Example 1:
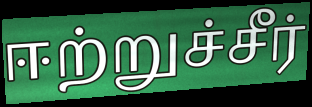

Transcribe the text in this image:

ஈற்றுச்சீர்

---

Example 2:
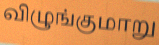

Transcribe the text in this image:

விழுங்குமாறு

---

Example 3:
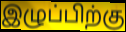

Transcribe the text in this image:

இழுப்பிற்கு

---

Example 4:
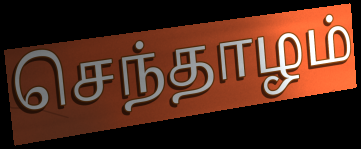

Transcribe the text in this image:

செந்தாழம்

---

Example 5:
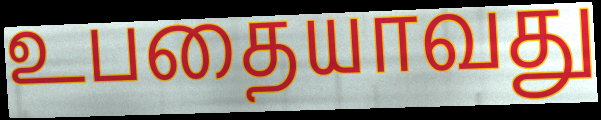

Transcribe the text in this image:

உபதையாவது